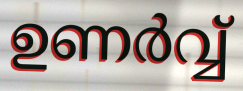
ഉണർവ്വ്